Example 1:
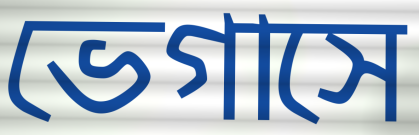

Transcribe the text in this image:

ভেগাসে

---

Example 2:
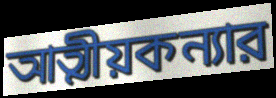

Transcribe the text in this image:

আত্মীয়কন্যার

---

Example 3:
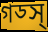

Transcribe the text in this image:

গড্স্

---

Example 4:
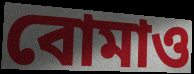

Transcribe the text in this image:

বোমাও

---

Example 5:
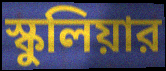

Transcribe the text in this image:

স্কুলিয়ার